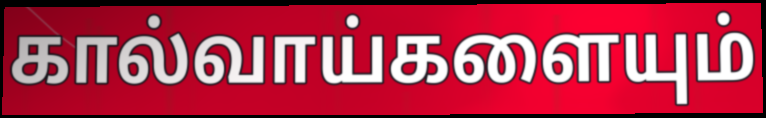
கால்வாய்களையும்